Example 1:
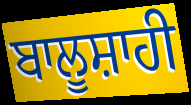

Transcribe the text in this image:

ਬਾਲੂਸ਼ਾਹੀ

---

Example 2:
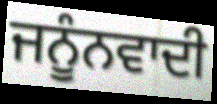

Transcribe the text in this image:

ਜਨੂੰਨਵਾਦੀ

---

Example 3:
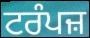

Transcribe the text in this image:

ਟਰੰਪਜ਼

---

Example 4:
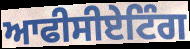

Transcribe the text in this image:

ਆਫੀਸੀਏਟਿੰਗ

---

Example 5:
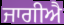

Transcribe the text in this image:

ਜਾਗੀਐ